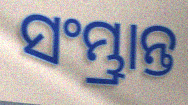
ସଂମ୍ଭ୍ରାନ୍ତ